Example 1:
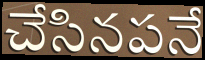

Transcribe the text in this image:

చేసినపనే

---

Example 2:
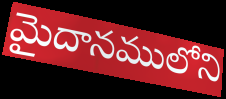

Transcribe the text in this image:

మైదానములోని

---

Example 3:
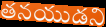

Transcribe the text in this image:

తనయుడని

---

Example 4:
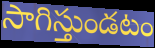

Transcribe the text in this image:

సాగిస్తుండటం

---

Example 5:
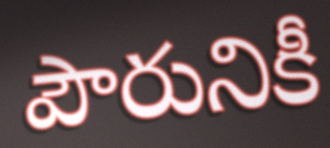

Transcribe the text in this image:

పౌరునికీ